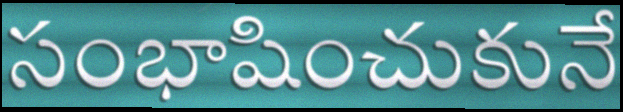
సంభాషించుకునే